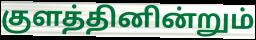
குளத்தினின்றும்